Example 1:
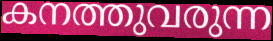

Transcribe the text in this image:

കനത്തുവരുന്ന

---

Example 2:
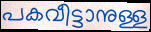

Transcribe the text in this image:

പകവീട്ടാനുള്ള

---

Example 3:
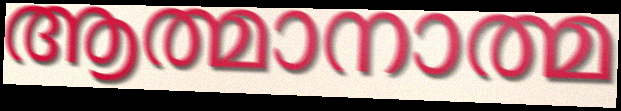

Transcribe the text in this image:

ആത്മാനാത്മ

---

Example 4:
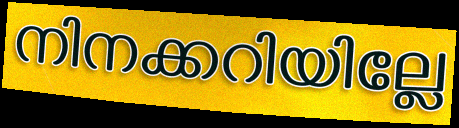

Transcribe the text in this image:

നിനക്കറിയില്ലേ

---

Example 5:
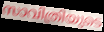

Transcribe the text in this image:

സാവിത്രിയുടെ